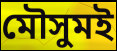
মৌসুমই